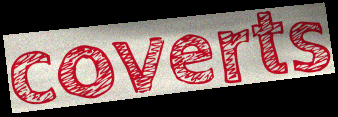
coverts